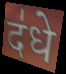
द॑धे